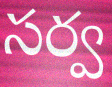
సర్వ